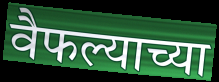
वैफल्याच्या